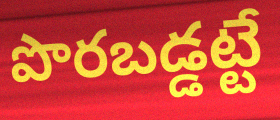
పొరబడ్డట్టే